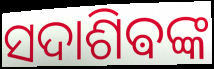
ସଦାଶିଵଙ୍କ